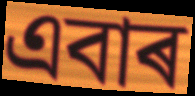
এবাৰ